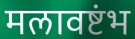
मलावष्टंभ